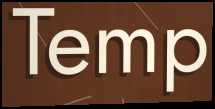
Temp